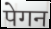
पेगन